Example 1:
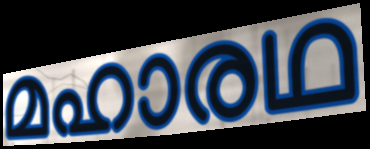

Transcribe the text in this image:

മഹാരഥ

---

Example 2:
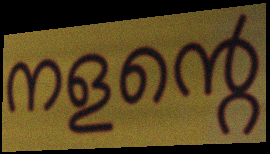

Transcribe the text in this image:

നളന്റെ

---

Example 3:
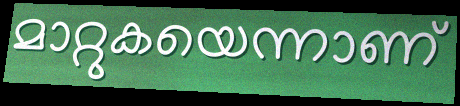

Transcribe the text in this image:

മാറ്റുകയെന്നാണ്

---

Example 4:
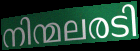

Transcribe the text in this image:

നിന്മലരടി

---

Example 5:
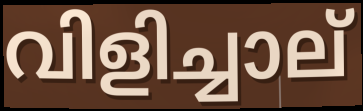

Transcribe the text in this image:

വിളിച്ചാല്